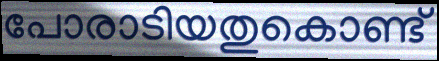
പോരാടിയതുകൊണ്ട്